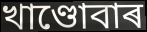
খাণ্ডোবাৰ